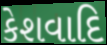
કેશવાદિ